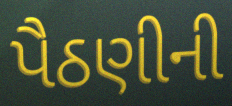
પૈઠણીની